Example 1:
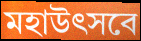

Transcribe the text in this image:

মহাউৎসবে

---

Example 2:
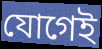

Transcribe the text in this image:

যোগেই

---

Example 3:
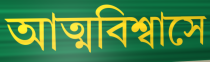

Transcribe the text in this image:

আত্মবিশ্বাসে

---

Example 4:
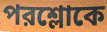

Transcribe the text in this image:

পরশ্লোকে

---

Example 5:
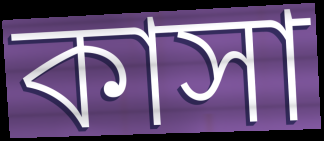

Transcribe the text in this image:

কাসা